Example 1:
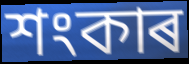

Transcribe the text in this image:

শংকাৰ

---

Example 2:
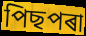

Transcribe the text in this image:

পিছপৰা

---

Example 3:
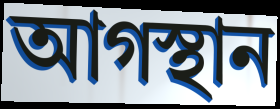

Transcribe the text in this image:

আগস্থান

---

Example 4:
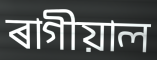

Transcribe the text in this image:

ৰাগীয়াল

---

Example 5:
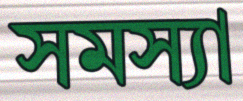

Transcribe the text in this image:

সমস্যা